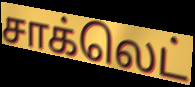
சாக்லெட்